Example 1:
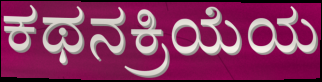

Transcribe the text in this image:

ಕಥನಕ್ರಿಯೆಯ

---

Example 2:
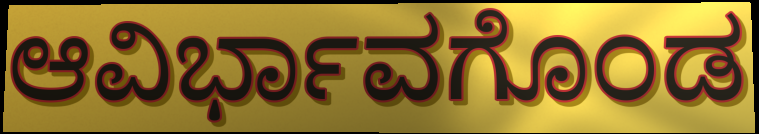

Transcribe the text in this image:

ಆವಿರ್ಭಾವಗೊಂಡ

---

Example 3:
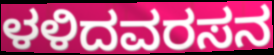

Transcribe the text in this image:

ಳಳಿದವರಸನ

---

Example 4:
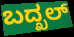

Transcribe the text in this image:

ಬದ್ಖಲ್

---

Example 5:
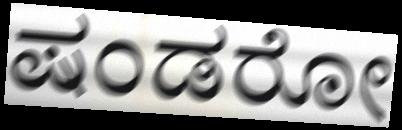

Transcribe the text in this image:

ಷಂಡರೋ